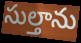
సుల్తాను